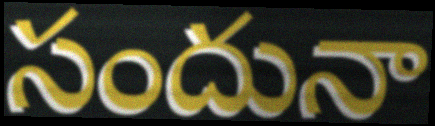
సందునా